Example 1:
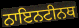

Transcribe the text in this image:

ਨਾਇਨਟੀਨਥ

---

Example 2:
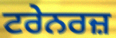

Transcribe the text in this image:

ਟਰੇਨਰਜ਼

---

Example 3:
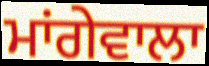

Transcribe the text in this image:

ਮਾਂਗੇਵਾਲਾ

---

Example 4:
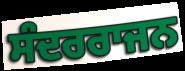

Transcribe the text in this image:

ਸੰਦਰਰਾਜਨ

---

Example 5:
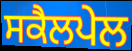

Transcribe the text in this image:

ਸਕੈਲਪੇਲ